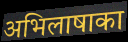
अभिलाषाका